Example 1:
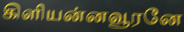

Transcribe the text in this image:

கிளியன்னவூரனே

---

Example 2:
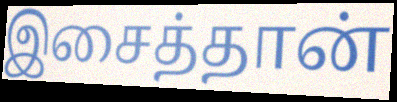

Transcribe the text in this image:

இசைத்தான்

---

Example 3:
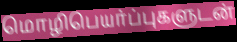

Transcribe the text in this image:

மொழிபெயர்ப்புகளுடன்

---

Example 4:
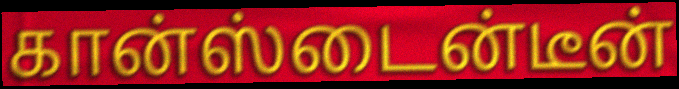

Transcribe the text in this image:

கான்ஸ்டைன்டீன்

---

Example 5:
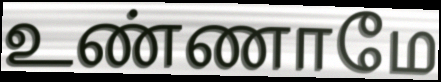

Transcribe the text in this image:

உண்ணாமே